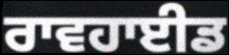
ਰਾਵਹਾਈਡ